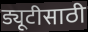
ड्यूटीसाठी